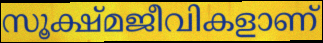
സൂക്ഷ്മജീവികളാണ്